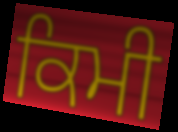
ਕਿਮੀ